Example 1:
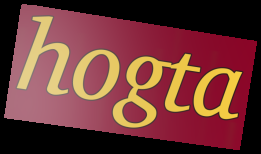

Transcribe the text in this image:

hogta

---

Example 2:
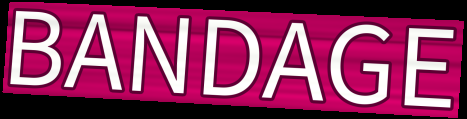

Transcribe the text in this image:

BANDAGE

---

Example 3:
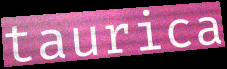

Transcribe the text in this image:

taurica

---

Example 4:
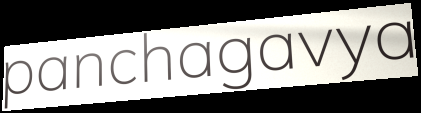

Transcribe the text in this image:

panchagavya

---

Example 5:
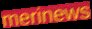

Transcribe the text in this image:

merinews